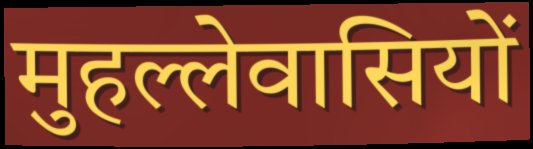
मुहल्लेवासियों